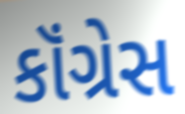
કૉંગ્રેસ